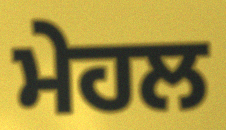
ਮੇਹਲ